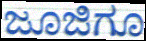
ಜೂಜಿಗೂ